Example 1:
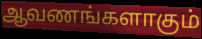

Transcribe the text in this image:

ஆவணங்களாகும்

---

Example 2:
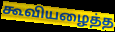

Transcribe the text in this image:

கூவியழைத்த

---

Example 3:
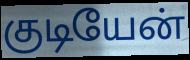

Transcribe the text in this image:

குடியேன்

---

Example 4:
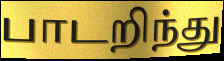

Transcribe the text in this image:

பாடறிந்து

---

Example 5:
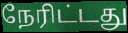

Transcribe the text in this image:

நேரிட்டது